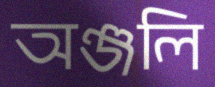
অঞ্জলি